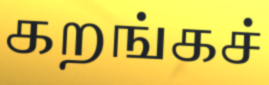
கறங்கச்